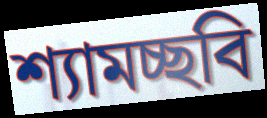
শ্যামচ্ছবি